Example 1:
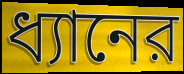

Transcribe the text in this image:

ধ্যানের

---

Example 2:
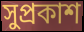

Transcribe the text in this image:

সুপ্রকাশ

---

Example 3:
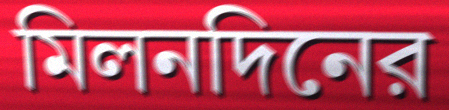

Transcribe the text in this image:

মিলনদিনের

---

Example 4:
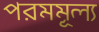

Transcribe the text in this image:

পরমমূল্য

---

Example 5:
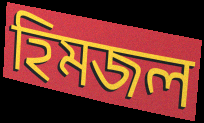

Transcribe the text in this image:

হিমজল